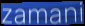
zamani